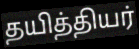
தயித்தியர்